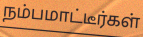
நம்பமாட்டீர்கள்